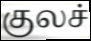
குலச்